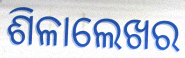
ଶିଳାଲେଖର